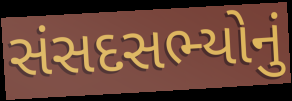
સંસદસભ્યોનું